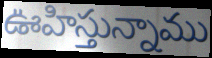
ఊహిస్తున్నాము